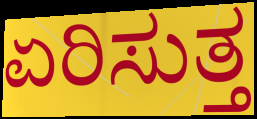
ಏರಿಸುತ್ತ